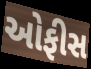
ઓફીસ